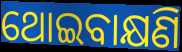
ଥୋଇବାକ୍ଷଣି